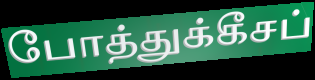
போத்துக்கீசப்